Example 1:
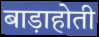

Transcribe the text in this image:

बाड़ाहोती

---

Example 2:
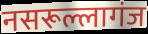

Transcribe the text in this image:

नसरूल्लागंज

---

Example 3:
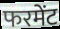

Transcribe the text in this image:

फरमेंट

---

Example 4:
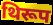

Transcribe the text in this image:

थिरूप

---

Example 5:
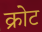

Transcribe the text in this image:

क्रोट